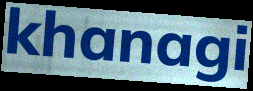
khanagi